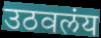
उठवलंय